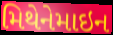
મિથેનેમાઇન